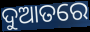
ଦୁଆତରେ